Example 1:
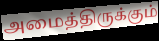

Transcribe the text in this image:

அமைத்திருக்கும்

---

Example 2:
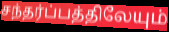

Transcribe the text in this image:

சந்தர்ப்பத்திலேயும்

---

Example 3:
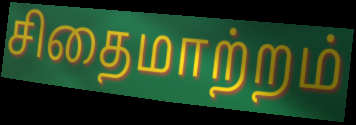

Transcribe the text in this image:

சிதைமாற்றம்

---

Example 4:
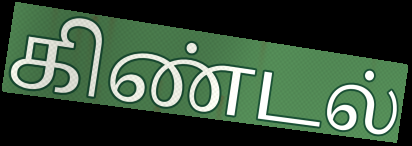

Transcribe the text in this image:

கிண்டல்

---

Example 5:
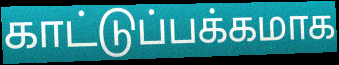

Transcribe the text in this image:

காட்டுப்பக்கமாக